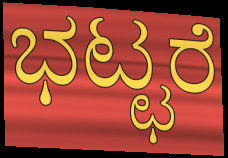
ಭಟ್ಟರೆ